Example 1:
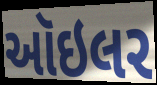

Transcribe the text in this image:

ઑઇલર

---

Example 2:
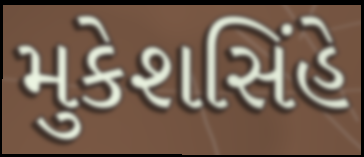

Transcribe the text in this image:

મુકેશસિંહે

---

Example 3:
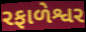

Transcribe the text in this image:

રફાળેશ્વર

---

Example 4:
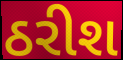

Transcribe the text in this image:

ઠરીશ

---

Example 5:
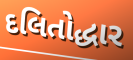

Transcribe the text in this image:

દલિતોદ્ધાર